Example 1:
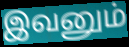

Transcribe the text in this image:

இவனும்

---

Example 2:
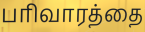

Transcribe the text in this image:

பரிவாரத்தை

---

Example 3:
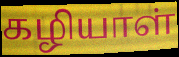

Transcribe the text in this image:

கழியாள்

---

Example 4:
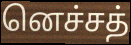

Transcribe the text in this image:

னெச்சத்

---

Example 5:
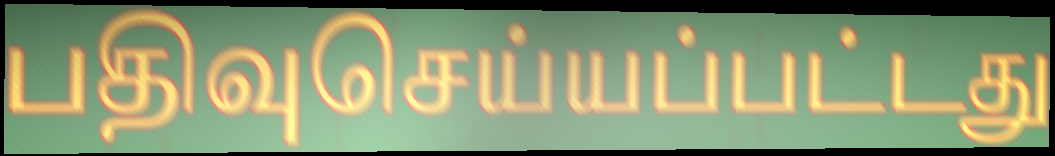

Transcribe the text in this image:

பதிவுசெய்யப்பட்டது